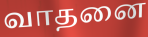
வாதனை